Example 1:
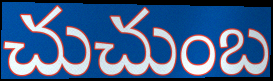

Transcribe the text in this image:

చుచుంబ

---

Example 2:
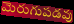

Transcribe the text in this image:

మెరుగుపడవు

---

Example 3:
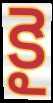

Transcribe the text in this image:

కై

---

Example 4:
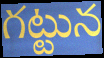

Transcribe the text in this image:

గట్టున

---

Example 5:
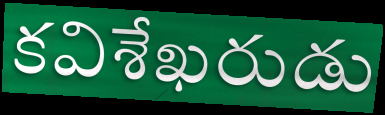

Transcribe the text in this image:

కవిశేఖరుడు